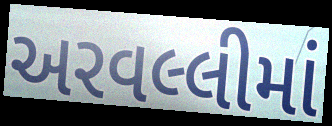
અરવલ્લીમાં